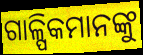
ଗାଳ୍ପିକମାନଙ୍କୁ